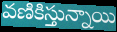
వణికిస్తున్నాయి